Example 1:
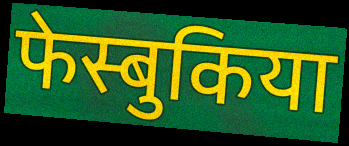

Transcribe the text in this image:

फेस्बुकिया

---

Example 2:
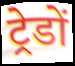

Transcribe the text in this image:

ट्रेडों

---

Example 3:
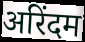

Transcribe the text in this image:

अरिंदम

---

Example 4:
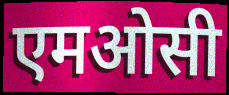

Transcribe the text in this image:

एमओसी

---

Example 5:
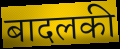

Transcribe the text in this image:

बादलकी